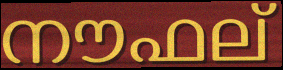
നൗഫല്